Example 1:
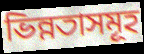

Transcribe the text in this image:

ভিন্নতাসমূহ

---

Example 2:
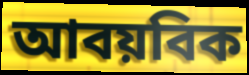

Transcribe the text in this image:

আবয়বিক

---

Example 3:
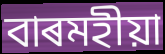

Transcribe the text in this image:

বাৰমহীয়া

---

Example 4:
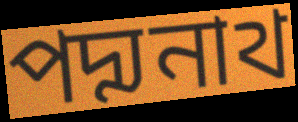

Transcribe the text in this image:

পদ্মনাথ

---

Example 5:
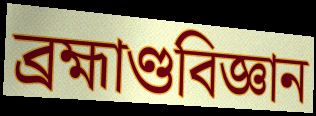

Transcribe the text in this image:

ব্ৰহ্মাণ্ডবিজ্ঞান